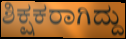
ಶಿಕ್ಷಕರಾಗಿದ್ದು